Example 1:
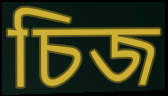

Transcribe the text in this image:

চিজ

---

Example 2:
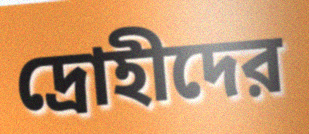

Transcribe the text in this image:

দ্রোহীদের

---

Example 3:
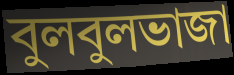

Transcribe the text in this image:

বুলবুলভাজা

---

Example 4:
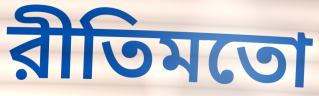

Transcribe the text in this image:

রীতিমতো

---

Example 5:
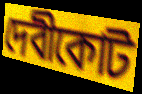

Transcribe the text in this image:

দেবীকোট